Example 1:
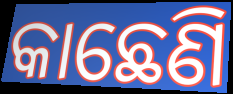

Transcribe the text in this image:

କାଛେଣି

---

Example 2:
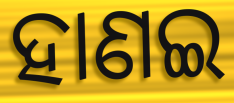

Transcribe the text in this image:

ହାଣଇ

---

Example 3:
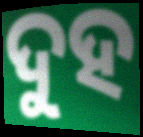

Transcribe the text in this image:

ଦୁହ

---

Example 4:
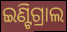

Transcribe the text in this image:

ଇଣ୍ଟିଗ୍ରାଲ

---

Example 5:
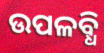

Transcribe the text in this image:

ଉପଳବ୍ଧି